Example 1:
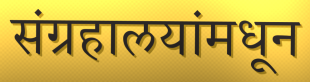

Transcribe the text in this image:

संग्रहालयांमधून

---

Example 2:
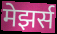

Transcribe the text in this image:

मेझर्स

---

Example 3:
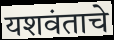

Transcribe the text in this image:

यशवंताचे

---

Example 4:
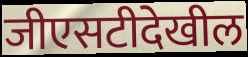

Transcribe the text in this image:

जीएसटीदेखील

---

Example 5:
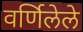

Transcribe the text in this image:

वर्णिलेले